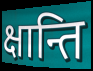
क्षान्ति